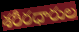
శరీరధారుల